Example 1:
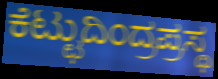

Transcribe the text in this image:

ಕೆಟ್ಟುದಿಂದ್ರಪ್ರಸ್ಥ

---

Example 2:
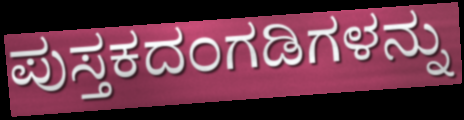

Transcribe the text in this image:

ಪುಸ್ತಕದಂಗಡಿಗಳನ್ನು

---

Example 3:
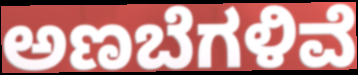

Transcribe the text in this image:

ಅಣಬೆಗಳಿವೆ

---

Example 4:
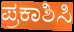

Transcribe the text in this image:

ಪ್ರಕಾಶಿಸಿ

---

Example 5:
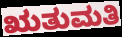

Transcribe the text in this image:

ಋತುಮತಿ